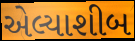
એલ્યાશીબ